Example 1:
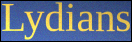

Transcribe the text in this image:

Lydians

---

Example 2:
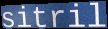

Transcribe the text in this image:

sitril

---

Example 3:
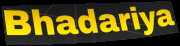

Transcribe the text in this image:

Bhadariya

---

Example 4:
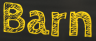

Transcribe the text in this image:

Barn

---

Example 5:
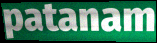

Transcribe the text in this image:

patanam